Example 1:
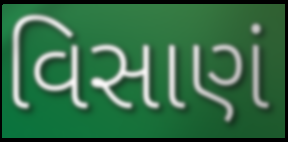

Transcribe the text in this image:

વિસાણં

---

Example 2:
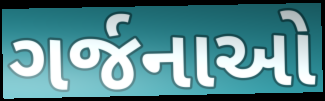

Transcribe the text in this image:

ગર્જનાઓ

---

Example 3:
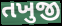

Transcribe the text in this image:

તખુજી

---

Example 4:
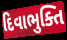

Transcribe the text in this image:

દિવાભુક્તિ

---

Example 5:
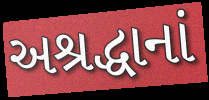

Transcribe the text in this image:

અશ્રદ્ધાનાં